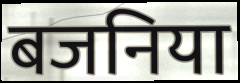
बजनिया